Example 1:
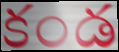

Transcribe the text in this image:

కండ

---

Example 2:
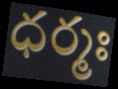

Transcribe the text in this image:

ధర్మః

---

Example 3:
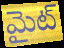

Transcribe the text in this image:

మైట్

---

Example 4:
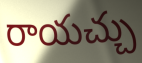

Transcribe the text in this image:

రాయచ్చు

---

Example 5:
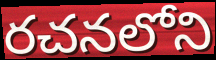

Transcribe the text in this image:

రచనలోని